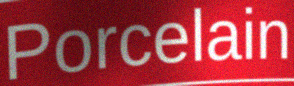
Porcelain